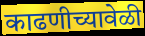
काढणीच्यावेळी